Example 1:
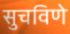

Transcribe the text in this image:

सुचविणे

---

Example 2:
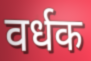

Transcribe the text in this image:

वर्धक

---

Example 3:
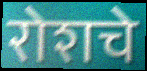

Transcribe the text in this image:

रोशचे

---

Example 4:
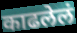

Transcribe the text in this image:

काढलेलं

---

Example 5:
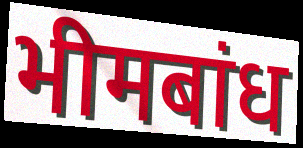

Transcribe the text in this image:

भीमबांध